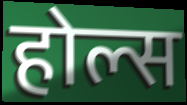
होल्स